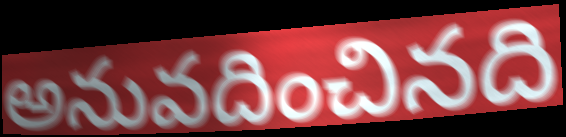
అనువదించినది